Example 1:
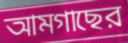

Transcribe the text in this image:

আমগাছের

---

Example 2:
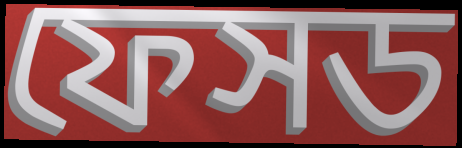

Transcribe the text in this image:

ফেসড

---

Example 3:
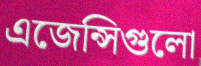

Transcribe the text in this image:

এজেন্সিগুলো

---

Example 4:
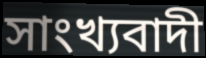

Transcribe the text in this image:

সাংখ্যবাদী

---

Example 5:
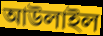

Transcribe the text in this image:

আউলাইল